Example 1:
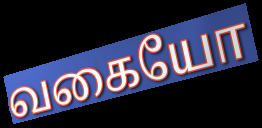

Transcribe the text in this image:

வகையோ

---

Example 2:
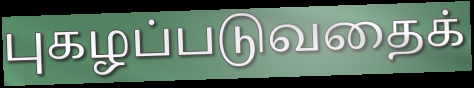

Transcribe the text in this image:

புகழப்படுவதைக்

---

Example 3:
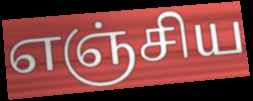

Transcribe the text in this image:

எஞ்சிய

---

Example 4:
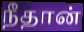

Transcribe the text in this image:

நீதான்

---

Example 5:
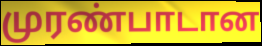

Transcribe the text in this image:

முரண்பாடான